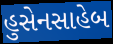
હુસેનસાહેબ